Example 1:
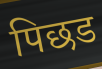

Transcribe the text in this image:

पिछड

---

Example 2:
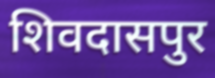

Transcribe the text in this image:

शिवदासपुर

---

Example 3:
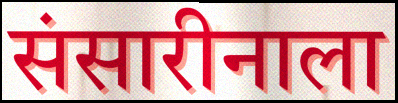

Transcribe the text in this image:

संसारीनाला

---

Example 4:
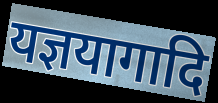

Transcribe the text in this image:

यज्ञयागादि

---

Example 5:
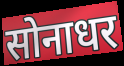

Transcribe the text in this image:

सोनाधर